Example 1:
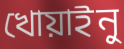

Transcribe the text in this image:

খোয়াইনু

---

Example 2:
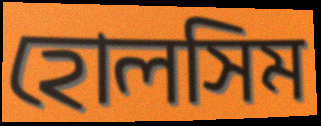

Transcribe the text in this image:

হোলসিম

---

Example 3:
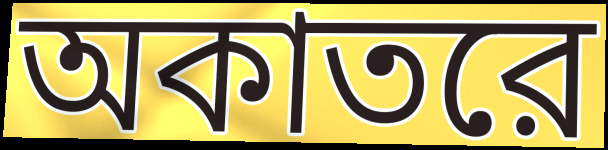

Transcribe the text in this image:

অকাতরে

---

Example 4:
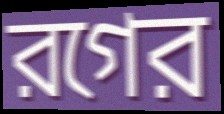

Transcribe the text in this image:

রগের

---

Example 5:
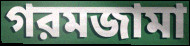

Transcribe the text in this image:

গরমজামা